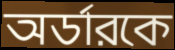
অর্ডারকে